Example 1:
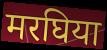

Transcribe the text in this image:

मरघिया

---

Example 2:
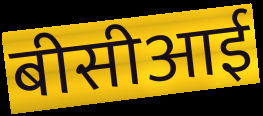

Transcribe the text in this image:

बीसीआई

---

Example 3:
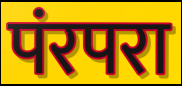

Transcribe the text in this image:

पंरपरा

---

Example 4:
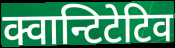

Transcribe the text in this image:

क्वान्टिटेटिव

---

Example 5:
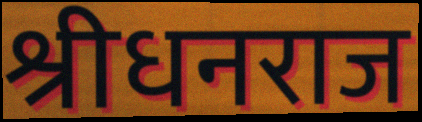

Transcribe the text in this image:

श्रीधनराज